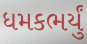
ધમકભર્યું